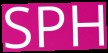
SPH